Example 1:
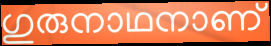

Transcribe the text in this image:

ഗുരുനാഥനാണ്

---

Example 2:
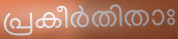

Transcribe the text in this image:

പ്രകീർതിതാഃ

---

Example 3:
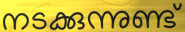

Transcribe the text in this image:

നടക്കുന്നുണ്ട്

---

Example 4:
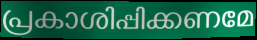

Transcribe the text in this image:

പ്രകാശിപ്പിക്കണമേ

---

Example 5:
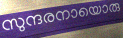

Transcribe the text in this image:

സുന്ദരനായൊരു